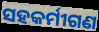
ସହକର୍ମୀଗଣ